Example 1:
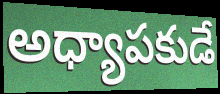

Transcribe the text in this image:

అధ్యాపకుడే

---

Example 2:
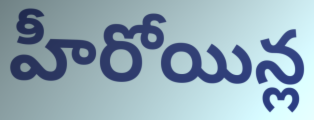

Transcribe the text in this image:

హీరోయిన్ల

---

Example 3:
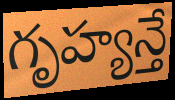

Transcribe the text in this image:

గృహ్యన్తే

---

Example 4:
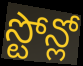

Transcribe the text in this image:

స్టోన్లో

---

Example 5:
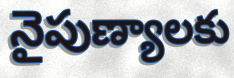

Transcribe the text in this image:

నైపుణ్యాలకు